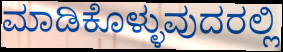
ಮಾಡಿಕೊಳ್ಳುವುದರಲ್ಲಿ